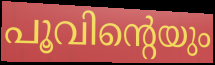
പൂവിന്റെയും